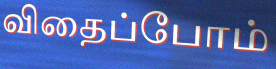
விதைப்போம்